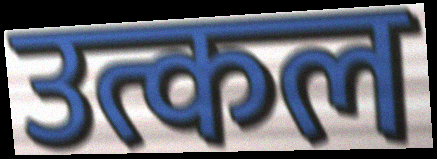
उत्कल